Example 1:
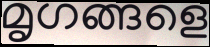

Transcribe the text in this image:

മൃഗങ്ങളെ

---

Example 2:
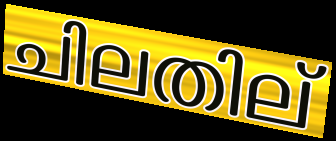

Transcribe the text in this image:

ചിലതില്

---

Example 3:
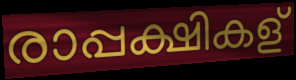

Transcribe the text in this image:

രാപ്പക്ഷികള്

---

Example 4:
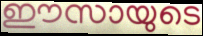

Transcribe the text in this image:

ഈസായുടെ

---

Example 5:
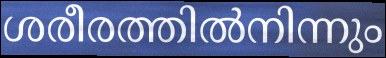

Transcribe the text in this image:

ശരീരത്തിൽനിന്നും